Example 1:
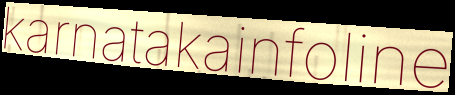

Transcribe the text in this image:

karnatakainfoline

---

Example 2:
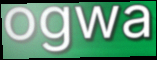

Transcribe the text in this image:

ogwa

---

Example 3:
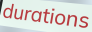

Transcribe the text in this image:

durations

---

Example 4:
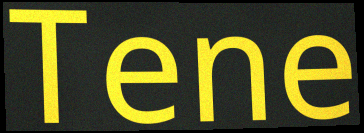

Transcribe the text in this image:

Tene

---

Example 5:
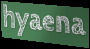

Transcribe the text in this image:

hyaena